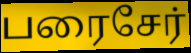
பரைசேர்